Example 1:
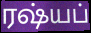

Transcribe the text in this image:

ரஷ்யப்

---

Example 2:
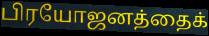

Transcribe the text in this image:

பிரயோஜனத்தைக்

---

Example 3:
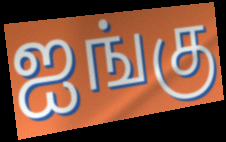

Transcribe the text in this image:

ஐங்கு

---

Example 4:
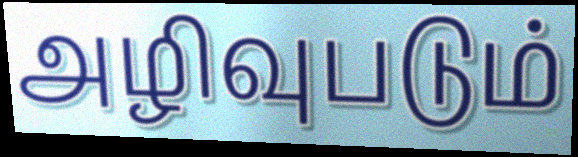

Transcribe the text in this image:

அழிவுபடும்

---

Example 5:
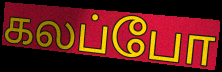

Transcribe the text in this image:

கலப்போ